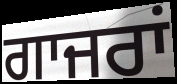
ਗਾਜਰਾਂ